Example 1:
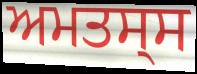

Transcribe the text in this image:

ਅਮਤਸ੍ਸ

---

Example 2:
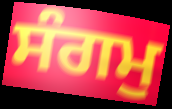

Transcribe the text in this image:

ਸੰਗਮੁ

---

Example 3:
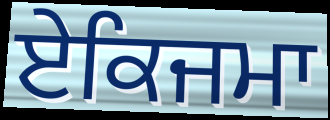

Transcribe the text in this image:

ਏਕਿਜਮਾ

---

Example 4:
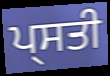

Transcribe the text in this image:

ਪ੍ਸਤੀ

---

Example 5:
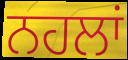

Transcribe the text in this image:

ਨਹਲਾਂ